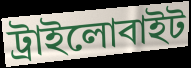
ট্রাইলোবাইট